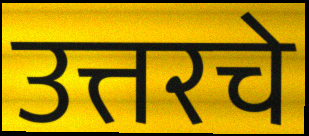
उत्तरचे